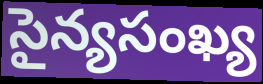
సైన్యసంఖ్య